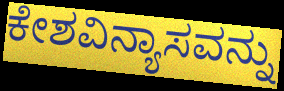
ಕೇಶವಿನ್ಯಾಸವನ್ನು